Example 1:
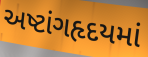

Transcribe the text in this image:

અષ્ટાંગહૃદયમાં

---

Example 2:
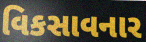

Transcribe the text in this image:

વિકસાવનાર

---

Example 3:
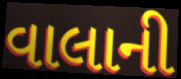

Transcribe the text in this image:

વાલાની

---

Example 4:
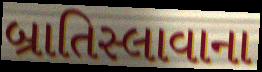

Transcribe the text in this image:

બ્રાતિસ્લાવાના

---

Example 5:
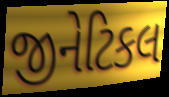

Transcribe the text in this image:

જીનેટિકલ